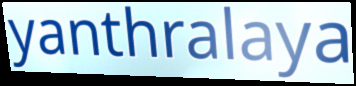
yanthralaya